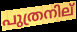
പുത്രനില്